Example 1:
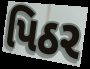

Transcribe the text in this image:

પિઠર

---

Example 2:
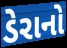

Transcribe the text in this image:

ડેરાનો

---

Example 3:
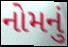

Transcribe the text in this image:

નોમનું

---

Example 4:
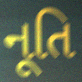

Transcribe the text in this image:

નૂતિ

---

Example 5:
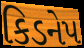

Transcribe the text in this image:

કિડનેપ